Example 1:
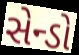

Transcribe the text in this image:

સેન્ડો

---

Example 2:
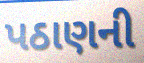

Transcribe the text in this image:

પઠાણની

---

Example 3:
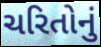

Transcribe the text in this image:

ચરિતોનું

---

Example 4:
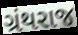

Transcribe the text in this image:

ગ્રંથરાજ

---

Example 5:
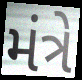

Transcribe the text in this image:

મંત્રે